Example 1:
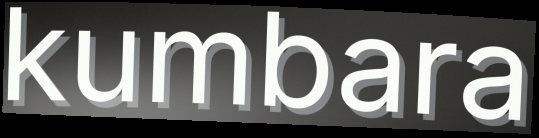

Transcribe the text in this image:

kumbara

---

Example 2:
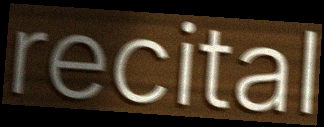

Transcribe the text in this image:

recital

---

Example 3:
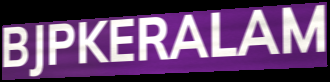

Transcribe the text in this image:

BJPKERALAM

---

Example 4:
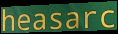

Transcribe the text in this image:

heasarc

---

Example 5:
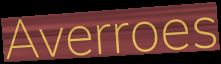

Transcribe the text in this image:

Averroes